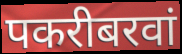
पकरीबरवां